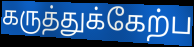
கருத்துக்கேற்ப